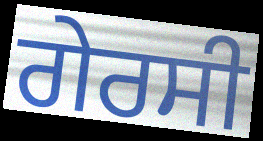
ਗੇਰਸੀ